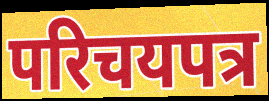
परिचयपत्र